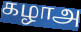
கழாஅ